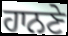
ਹਾਨਣੇ